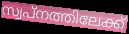
സ്വപ്നത്തിലേക്ക്